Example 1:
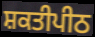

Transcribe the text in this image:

ਸ਼ਕਤੀਪੀਠ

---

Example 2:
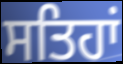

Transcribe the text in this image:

ਸਤਿਹਾਂ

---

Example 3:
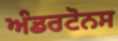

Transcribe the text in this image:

ਅੰਡਰਟੋਨਸ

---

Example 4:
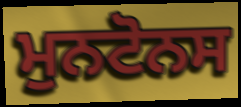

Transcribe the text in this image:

ਮੁਨਟੋਨਸ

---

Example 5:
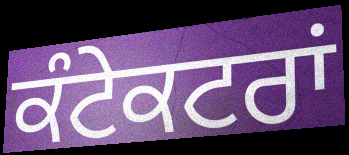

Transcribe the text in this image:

ਕੰਟੇਕਟਰਾਂ